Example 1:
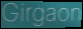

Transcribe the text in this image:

Girgaon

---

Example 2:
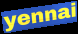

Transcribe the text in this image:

yennai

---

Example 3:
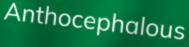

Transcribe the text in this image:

Anthocephalous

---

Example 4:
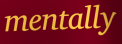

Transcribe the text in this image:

mentally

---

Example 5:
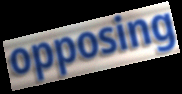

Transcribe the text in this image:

opposing